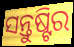
ସନ୍ତୁଷ୍ଟିର